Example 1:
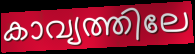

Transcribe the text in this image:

കാവ്യത്തിലേ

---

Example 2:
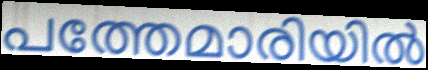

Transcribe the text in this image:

പത്തേമാരിയിൽ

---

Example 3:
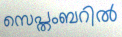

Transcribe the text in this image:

സെപ്തംബറിൽ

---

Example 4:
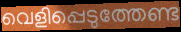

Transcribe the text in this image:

വെളിപ്പെടുത്തേണ്ട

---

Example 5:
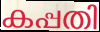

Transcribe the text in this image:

കപ്പതി